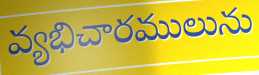
వ్యభిచారములును